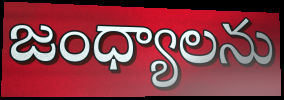
జంధ్యాలను